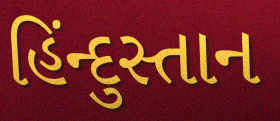
હિંન્દુસ્તાન